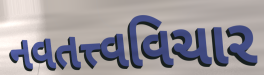
નવતત્ત્વવિચાર